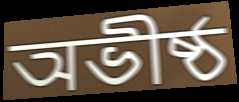
অভীষ্ঠ